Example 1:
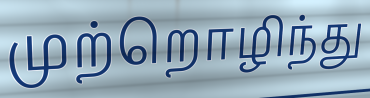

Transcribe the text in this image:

முற்றொழிந்து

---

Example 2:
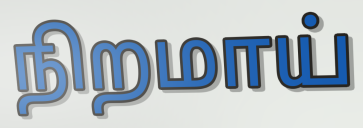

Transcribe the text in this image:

நிறமாய்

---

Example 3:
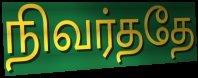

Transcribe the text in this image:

நிவர்ததே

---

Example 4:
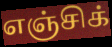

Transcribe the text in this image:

எஞ்சிக்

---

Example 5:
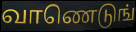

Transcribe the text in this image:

வாணெடுங்